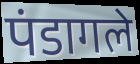
पंडागले